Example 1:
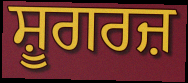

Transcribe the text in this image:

ਸ਼ੂਗਰਜ਼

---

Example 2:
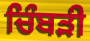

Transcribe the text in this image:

ਚਿੰਬੜੀ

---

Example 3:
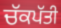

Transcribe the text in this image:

ਚੱਕਪੱਤੀ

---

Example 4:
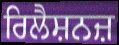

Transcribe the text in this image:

ਰਿਲੈਸ਼ਨਜ਼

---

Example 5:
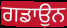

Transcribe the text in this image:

ਗਡਾਉਨ